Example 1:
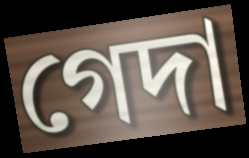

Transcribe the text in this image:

গেদা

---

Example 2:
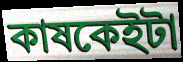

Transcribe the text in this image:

কাষকেইটা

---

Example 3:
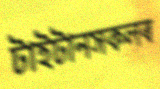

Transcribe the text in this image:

টাইটানসকলৰ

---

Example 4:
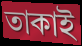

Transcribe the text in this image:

তাকাই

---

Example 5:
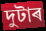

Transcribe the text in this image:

দুটাৰ